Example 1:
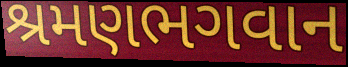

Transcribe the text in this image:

શ્રમણભગવાન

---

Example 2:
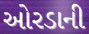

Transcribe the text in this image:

ઓરડાની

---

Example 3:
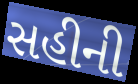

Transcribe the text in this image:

સહીની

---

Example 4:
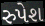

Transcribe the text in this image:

રુપેશ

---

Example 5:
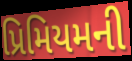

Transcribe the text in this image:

પ્રિમિયમની